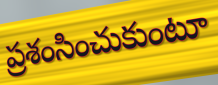
ప్రశంసించుకుంటూ